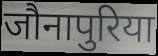
जौनापुरिया